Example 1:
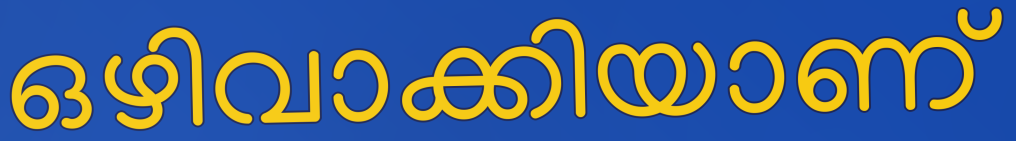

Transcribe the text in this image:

ഒഴിവാക്കിയാണ്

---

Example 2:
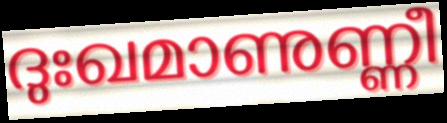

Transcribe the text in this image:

ദുഃഖമാണുണ്ണീ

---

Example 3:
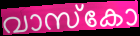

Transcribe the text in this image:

വാസ്കോ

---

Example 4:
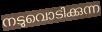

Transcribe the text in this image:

നടുവൊടിക്കുന്ന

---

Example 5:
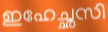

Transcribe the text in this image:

ഇഹേച്ഛസി